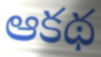
ఆకథ